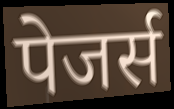
पेजर्स